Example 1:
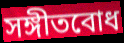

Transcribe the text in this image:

সঙ্গীতবোধ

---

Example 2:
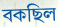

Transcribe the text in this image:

বকছিল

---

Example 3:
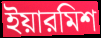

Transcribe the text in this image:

ইয়ারমিশ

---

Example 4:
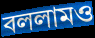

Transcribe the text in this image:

বললামও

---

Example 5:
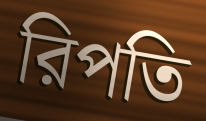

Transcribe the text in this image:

রিপতি